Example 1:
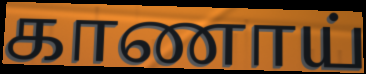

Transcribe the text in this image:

காணாய்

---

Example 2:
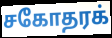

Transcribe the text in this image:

சகோதரக்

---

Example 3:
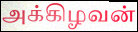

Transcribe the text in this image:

அக்கிழவன்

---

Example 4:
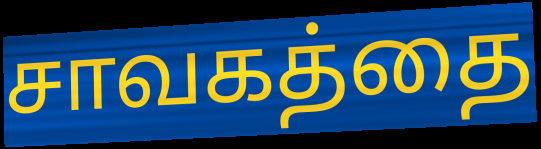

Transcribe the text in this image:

சாவகத்தை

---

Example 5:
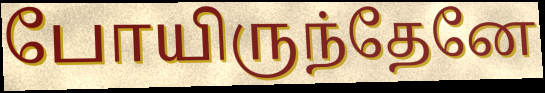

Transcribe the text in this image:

போயிருந்தேனே